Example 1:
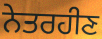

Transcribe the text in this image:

ਨੇਤਰਹੀਣ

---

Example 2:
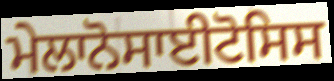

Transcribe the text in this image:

ਮੇਲਾਨੋਸਾਈਟੋਸਿਸ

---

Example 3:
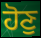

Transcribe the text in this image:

ਹੋਣੁ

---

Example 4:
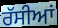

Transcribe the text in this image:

ਰੱਸੀਆਂ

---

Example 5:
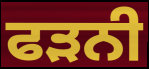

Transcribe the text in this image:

ਫੜਨੀ